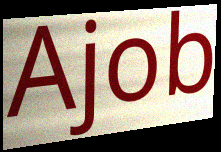
Ajob